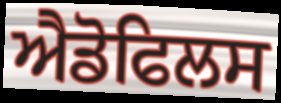
ਐਡੋਫਿਲਸ